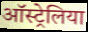
ऑस्‍ट्रेलिया